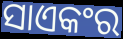
ସାଏକଂର